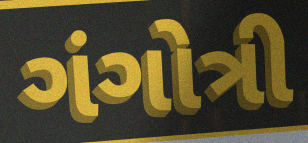
ગંગોત્રી